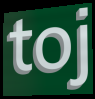
toj